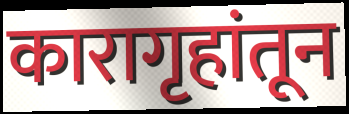
कारागृहांतून